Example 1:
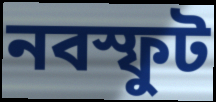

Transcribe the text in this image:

নবস্ফুট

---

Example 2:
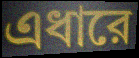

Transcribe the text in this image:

এধারে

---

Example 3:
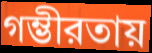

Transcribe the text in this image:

গম্ভীরতায়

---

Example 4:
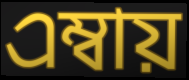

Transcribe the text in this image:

এম্বায়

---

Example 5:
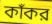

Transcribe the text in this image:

কাঁকর